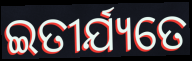
ଇତୀର୍ଯ୍ୟତେ